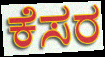
ಕೆಸರ